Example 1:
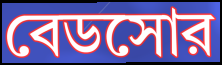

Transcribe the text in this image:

বেডসোর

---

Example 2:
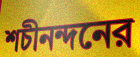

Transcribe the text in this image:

শচীনন্দনের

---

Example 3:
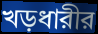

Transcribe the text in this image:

খড়ধারীর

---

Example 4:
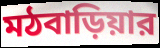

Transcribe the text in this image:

মঠবাড়িয়ার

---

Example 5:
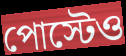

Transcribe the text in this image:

পোস্টেও